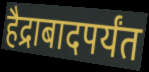
हैद्राबादपर्यंत